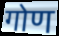
गोण